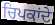
ਚਿਪਕਾਂਦੇ